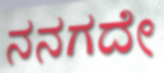
ನನಗದೇ